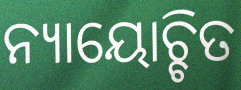
ନ୍ୟାୟୋଚ୍ଚିତ